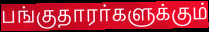
பங்குதாரர்களுக்கும்